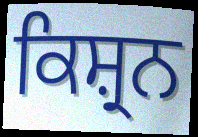
ਕਿਸ਼੍ਰਨ